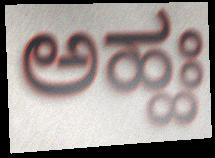
ಅಹ್ಹಃ